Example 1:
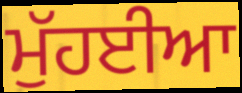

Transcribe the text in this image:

ਮੁੱਹਈਆ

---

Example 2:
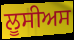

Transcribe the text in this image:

ਲੂਸੀਅਸ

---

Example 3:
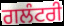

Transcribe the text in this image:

ਗਲੰਟਰੀ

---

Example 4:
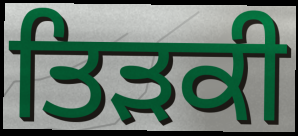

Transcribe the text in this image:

ਤਿੜਕੀ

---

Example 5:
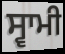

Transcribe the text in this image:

ਸ੍ਵਾਮੀ